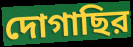
দোগাছির